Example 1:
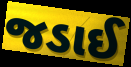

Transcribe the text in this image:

જડાઈ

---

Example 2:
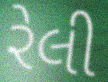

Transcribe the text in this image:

રેલી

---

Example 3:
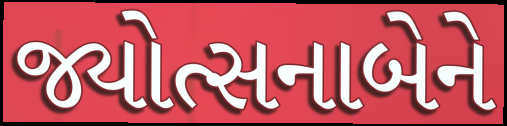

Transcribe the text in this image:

જ્યોત્સનાબેને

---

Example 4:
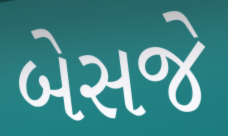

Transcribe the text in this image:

બેસજે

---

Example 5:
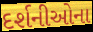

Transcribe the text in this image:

દર્શનીઓના